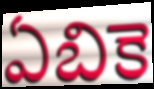
ఏబికె